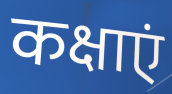
कक्षाएं